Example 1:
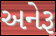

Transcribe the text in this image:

અનેરૂ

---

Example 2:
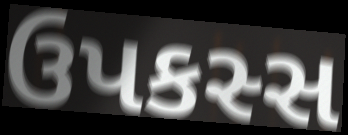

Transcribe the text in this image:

ઉપકસ્સ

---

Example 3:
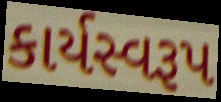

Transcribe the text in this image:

કાર્યસ્વરૂપ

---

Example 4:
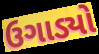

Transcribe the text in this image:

ઉગાડ્યો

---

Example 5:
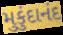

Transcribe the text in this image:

મુકુંદાનંદ